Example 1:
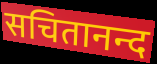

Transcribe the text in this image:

सचितानन्द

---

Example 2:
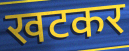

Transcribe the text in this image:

खटकर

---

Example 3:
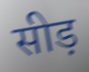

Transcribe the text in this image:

सीड़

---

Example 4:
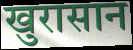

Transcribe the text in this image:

खुरासान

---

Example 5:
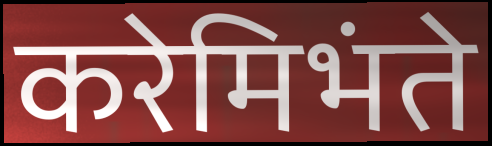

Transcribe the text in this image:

करेमिभंते